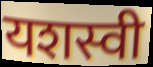
यशस्‍वी